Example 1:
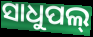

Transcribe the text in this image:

ସାଧୁପଲ୍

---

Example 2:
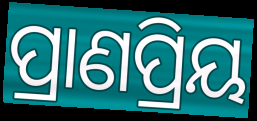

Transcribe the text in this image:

ପ୍ରାଣପ୍ରିୟ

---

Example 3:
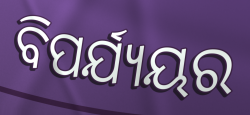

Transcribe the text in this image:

ବିପର୍ଯ୍ୟୟର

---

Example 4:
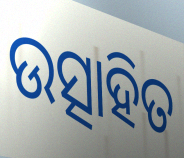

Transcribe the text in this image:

ଉତ୍ସାହିତ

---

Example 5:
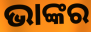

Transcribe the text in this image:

ଭାଙ୍କର